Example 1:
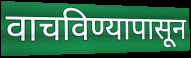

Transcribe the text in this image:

वाचविण्यापासून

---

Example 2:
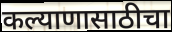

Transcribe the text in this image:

कल्याणासाठीचा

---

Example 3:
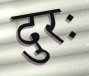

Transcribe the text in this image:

दुरः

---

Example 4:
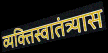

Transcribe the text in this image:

व्यक्तिस्वातंत्र्यास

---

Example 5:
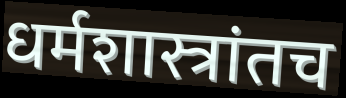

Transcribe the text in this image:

धर्मशास्त्रांतच